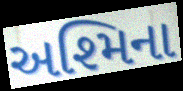
અશ્મિના